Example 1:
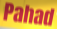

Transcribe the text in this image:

Pahad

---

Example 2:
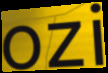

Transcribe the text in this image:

ozi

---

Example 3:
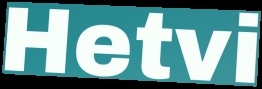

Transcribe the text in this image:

Hetvi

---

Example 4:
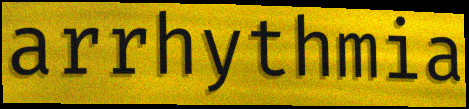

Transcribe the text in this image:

arrhythmia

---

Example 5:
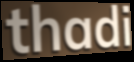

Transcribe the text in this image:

thadi